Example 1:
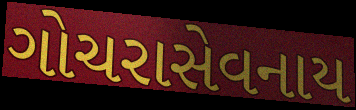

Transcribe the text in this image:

ગોચરાસેવનાય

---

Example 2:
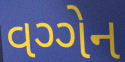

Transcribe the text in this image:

વગ્ગેન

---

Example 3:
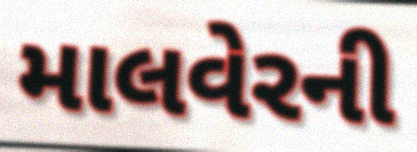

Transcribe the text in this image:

માલવેરની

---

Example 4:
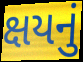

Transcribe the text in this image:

ક્ષયનું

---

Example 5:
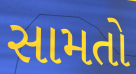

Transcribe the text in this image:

સામતો